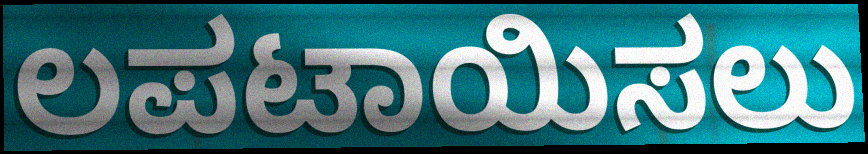
ಲಪಟಾಯಿಸಲು